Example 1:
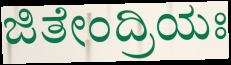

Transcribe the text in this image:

ಜಿತೇಂದ್ರಿಯಃ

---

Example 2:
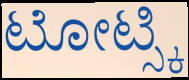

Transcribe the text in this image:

ಟೋಟ್ಸ್ಕಿ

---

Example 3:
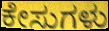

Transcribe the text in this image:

ಕೇಸುಗಳು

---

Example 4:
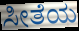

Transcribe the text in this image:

ಸೀತೆಯ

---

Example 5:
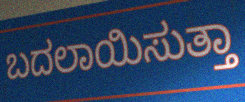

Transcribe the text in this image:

ಬದಲಾಯಿಸುತ್ತಾ